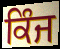
ਕਿੰਜ